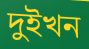
দুইখন